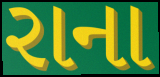
રાના